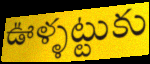
ఊళ్ళట్టుకు